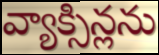
వ్యాక్సిన్లను